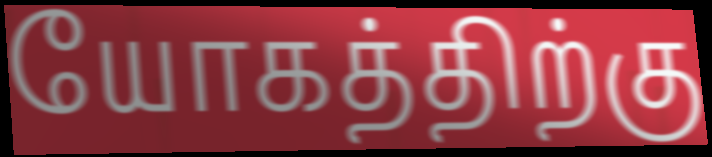
யோகத்திற்கு